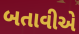
બતાવીએ